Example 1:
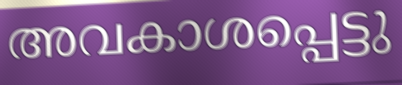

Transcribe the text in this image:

അവകാശപ്പെട്ടു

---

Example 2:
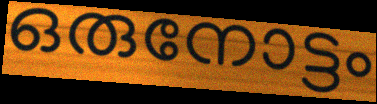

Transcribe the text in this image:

ഒരുനോട്ടം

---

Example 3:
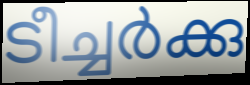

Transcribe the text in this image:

ടീച്ചർക്കു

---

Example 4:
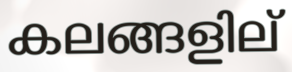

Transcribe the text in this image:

കലങ്ങളില്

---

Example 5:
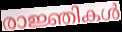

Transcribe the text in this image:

രാജ്ഞികൾ